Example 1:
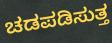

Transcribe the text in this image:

ಚಡಪಡಿಸುತ್ತ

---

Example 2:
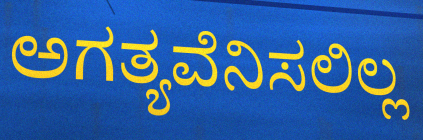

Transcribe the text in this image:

ಅಗತ್ಯವೆನಿಸಲಿಲ್ಲ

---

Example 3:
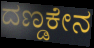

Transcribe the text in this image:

ದಣ್ಡಕೇನ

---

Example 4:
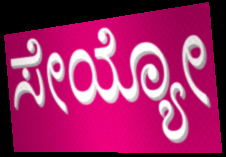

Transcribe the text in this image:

ಸೇಯ್ಯೋ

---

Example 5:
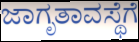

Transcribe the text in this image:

ಜಾಗೃತಾವಸ್ಥೆಗೆ